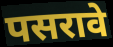
पसरावे